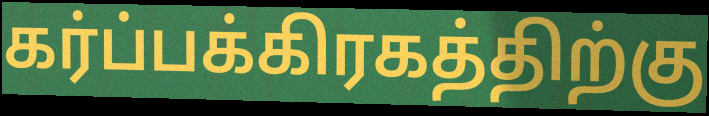
கர்ப்பக்கிரகத்திற்கு